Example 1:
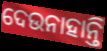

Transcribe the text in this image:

ଦେଉନାହାନ୍ତି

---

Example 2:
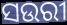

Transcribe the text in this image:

ସଉରୀ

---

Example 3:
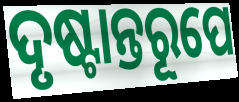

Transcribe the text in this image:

ଦୃଷ୍ଟାନ୍ତରୂପେ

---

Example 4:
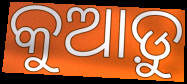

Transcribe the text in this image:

କୁଆଡ଼ୁ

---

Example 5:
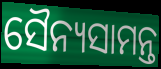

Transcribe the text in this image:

ସୈନ୍ୟସାମନ୍ତ